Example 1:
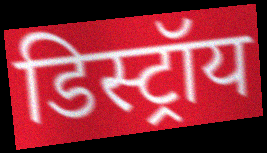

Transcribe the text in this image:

डिस्ट्रॉय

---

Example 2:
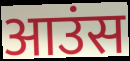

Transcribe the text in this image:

आउंस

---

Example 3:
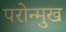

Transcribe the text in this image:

परोन्मुख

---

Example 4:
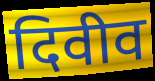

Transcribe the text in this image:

दिवीव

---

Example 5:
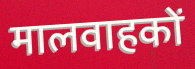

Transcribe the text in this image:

मालवाहकों